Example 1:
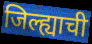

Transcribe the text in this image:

जिल्ह्याची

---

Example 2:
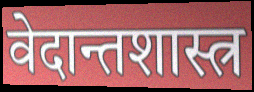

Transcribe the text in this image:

वेदान्तशास्त्र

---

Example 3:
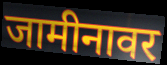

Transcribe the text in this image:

जामीनावर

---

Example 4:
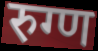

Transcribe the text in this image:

रुग्ण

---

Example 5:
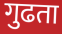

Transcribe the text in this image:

गुढता